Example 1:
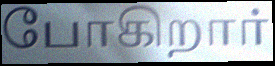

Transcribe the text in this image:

போகிறார்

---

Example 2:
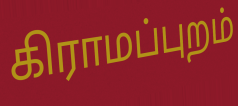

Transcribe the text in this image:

கிராமப்புறம்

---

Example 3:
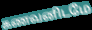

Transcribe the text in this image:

கணவனிடமே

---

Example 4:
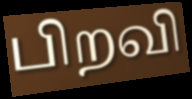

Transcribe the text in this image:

பிறவி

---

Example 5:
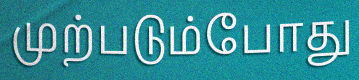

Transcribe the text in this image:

முற்படும்போது